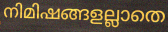
നിമിഷങ്ങളല്ലാതെ